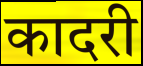
कादरी